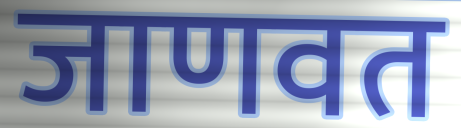
जाणवत